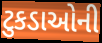
ટુકડાઓની